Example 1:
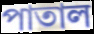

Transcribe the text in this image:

পাতাল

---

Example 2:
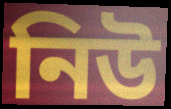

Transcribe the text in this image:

নিউ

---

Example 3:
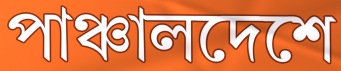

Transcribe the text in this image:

পাঞ্চালদেশে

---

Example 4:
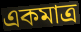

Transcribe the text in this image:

একমাত্র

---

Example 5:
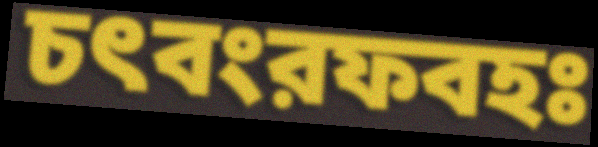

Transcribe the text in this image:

চৎবংরফবহঃ